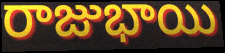
రాజుభాయి